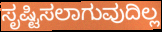
ಸೃಷ್ಟಿಸಲಾಗುವುದಿಲ್ಲ